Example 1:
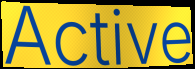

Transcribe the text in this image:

Active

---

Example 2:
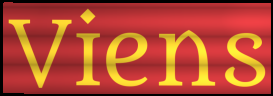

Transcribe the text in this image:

Viens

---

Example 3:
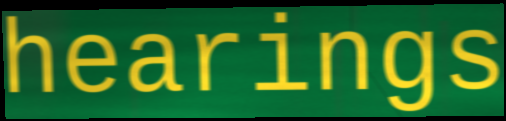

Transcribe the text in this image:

hearings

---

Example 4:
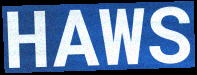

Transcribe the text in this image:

HAWS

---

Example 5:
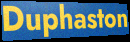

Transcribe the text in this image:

Duphaston